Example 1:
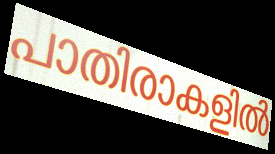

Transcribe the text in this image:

പാതിരാകളിൽ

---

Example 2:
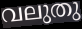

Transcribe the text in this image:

വലുതു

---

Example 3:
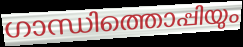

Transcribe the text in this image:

ഗാന്ധിത്തൊപ്പിയും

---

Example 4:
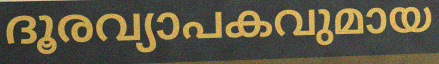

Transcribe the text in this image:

ദൂരവ്യാപകവുമായ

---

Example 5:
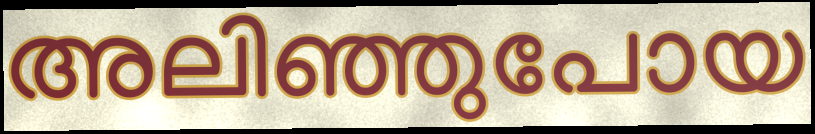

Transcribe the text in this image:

അലിഞ്ഞുപോയ